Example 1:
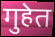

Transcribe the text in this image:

गुहेत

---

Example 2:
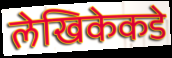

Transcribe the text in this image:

लेखिकेकडे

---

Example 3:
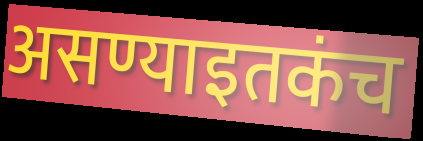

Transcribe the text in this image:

असण्याइतकंच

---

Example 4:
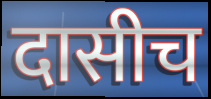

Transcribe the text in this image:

दासीच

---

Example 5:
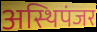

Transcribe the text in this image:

अस्थिपंजर